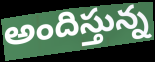
అందిస్తున్న